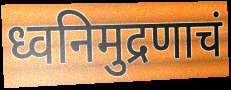
ध्वनिमुद्रणाचं